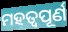
ମହତ୍ୱପୂର୍ଣ